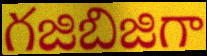
గజిబిజిగా